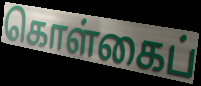
கொள்கைப்